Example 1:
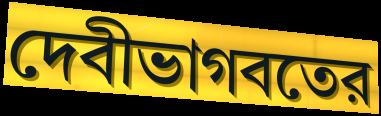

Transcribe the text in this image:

দেবীভাগবতের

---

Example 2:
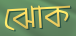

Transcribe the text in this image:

ঝোক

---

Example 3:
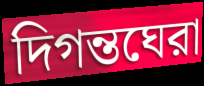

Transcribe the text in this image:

দিগন্তঘেরা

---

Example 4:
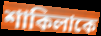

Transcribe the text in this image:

শাকিলাকে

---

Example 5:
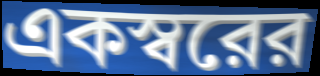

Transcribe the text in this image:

একস্বরের